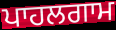
ਪਾਹਲਗਾਮ